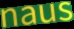
naus